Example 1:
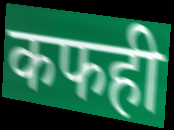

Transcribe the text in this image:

कफही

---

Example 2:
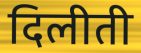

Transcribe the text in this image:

दिलीती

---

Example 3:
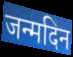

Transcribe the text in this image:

जन्मदिन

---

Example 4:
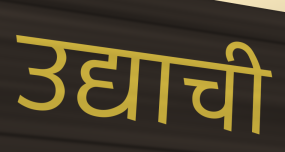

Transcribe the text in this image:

उद्याची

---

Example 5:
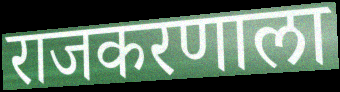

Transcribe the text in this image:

राजकरणाला